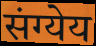
संग्येय